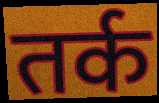
तर्क